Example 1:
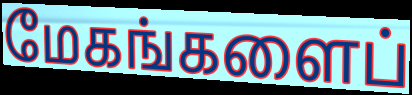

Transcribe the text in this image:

மேகங்களைப்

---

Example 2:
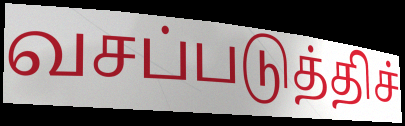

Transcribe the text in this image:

வசப்படுத்திச்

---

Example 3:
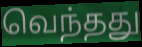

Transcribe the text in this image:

வெந்தது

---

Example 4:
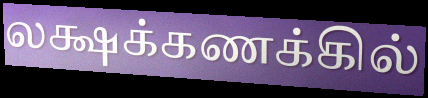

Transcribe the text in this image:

லக்ஷக்கணக்கில்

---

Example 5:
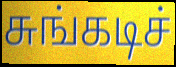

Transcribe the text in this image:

சுங்கடிச்